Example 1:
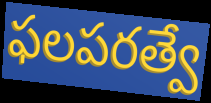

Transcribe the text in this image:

ఫలపరత్వే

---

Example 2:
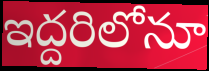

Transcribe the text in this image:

ఇద్దరిలోనూ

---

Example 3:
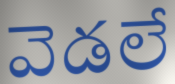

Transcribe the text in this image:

వెడలే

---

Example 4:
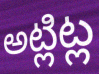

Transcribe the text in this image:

అట్లిట్ల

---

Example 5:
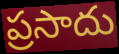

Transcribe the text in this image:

ప్రసాదు